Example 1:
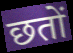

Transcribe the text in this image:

छतों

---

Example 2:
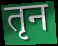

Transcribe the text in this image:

तृन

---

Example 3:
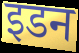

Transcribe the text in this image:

इडन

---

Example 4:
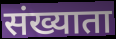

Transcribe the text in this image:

संख्याता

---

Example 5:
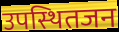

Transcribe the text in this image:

उपस्थितजन